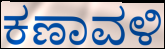
ಕಣಾವಳಿ